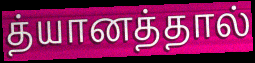
த்யானத்தால்